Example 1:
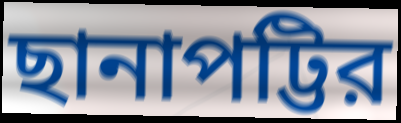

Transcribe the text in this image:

ছানাপট্টির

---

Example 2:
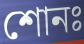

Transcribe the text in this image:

শোনঃ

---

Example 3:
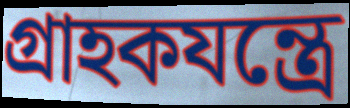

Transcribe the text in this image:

গ্রাহকযন্ত্রে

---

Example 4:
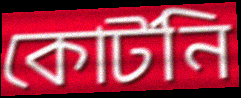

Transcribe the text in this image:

কোর্টনি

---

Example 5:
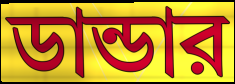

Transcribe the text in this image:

ডান্ডার